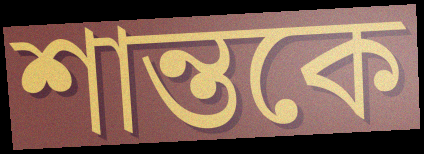
শান্তকে